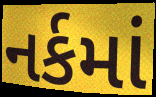
નર્કમાં